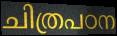
ചിത്രപഠന